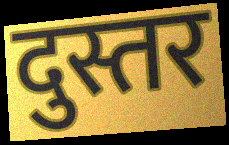
दुस्तर